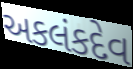
અકલંકદેવ